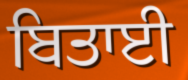
ਬਿਤਾਈ